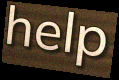
help